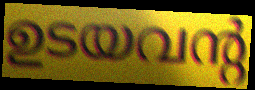
ഉടയവന്റ